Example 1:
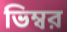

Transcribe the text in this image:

ভিম্বর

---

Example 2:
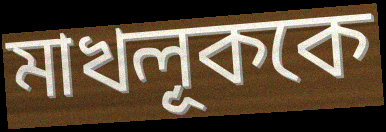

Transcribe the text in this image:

মাখলূককে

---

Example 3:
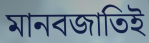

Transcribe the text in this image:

মানবজাতিই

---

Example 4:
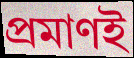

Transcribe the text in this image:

প্রমাণই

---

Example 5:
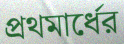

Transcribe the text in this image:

প্রথমার্ধের